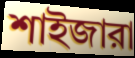
শাইজারা